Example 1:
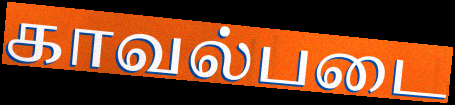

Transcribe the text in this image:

காவல்படை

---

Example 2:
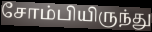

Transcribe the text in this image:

சோம்பியிருந்து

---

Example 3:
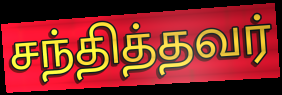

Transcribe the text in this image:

சந்தித்தவர்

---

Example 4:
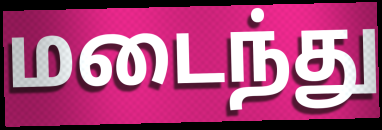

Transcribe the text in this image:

மடைந்து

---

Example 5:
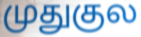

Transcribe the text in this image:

முதுகுல